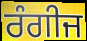
ਰੰਗੀਜ